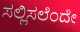
ಸಲ್ಲಿಸಲೆಂದೇ